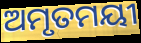
ଅମୃତମୟୀ